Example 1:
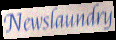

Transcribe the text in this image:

Newslaundry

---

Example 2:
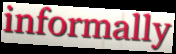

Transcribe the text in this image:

informally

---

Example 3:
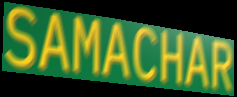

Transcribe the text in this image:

SAMACHAR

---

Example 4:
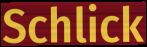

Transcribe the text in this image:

Schlick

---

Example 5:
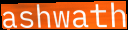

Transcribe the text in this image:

ashwath